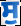
ਸੁ